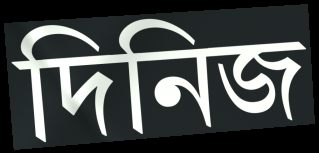
দিনিজ